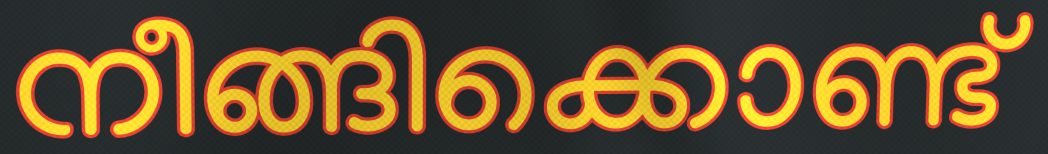
നീങ്ങിക്കൊണ്ട്